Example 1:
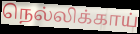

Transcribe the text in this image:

நெல்லிக்காய்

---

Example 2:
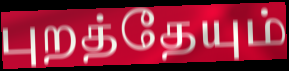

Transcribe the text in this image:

புறத்தேயும்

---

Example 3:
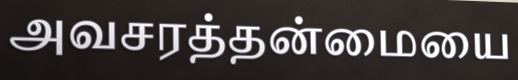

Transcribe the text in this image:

அவசரத்தன்மையை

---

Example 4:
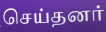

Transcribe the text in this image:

செய்தனர்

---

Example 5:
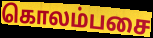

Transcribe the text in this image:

கொலம்பசை